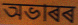
অভাৰৰ